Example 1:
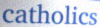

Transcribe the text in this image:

catholics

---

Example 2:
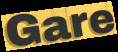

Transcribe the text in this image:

Gare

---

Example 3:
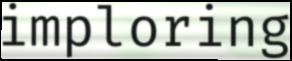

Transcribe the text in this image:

imploring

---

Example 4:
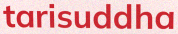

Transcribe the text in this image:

tarisuddha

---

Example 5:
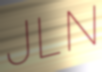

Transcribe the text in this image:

JLN